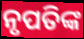
ନୃପତିଙ୍କ